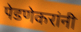
पेडणेकरांनी